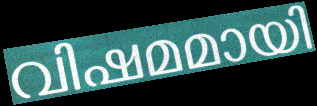
വിഷമമായി